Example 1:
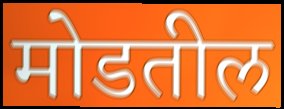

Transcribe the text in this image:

मोडतील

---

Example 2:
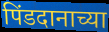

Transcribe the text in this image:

पिंडदानाच्या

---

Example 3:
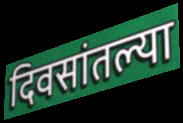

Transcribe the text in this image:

दिवसांतल्या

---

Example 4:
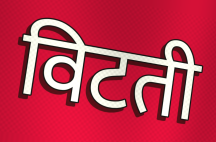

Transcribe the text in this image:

विटती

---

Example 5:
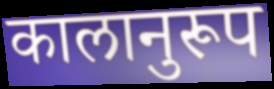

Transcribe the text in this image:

कालानुरूप